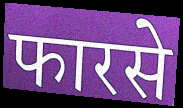
फारसे